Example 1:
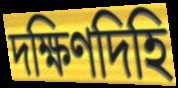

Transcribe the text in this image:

দক্ষিণদিহি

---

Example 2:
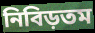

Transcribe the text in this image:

নিবিড়তম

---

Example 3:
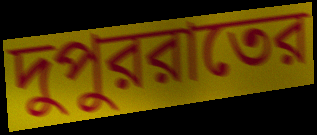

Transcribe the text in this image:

দুপুররাতের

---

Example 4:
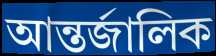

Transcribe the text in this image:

আন্তর্জালিক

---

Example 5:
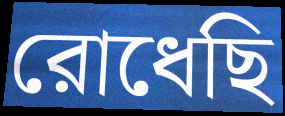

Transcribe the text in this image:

রোধেছি